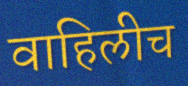
वाहिलीच